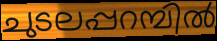
ചുടലപ്പറമ്പിൽ